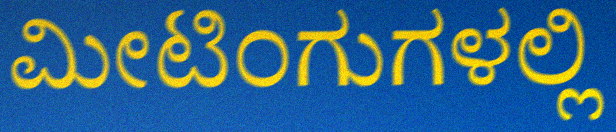
ಮೀಟಿಂಗುಗಳಲ್ಲಿ